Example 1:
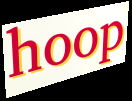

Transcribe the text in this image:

hoop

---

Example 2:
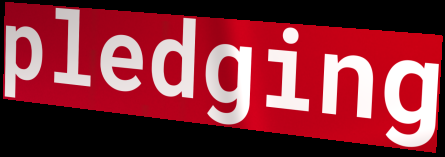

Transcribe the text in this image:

pledging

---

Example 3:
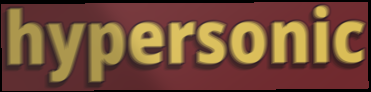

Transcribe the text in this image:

hypersonic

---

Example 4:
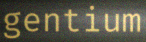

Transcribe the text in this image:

gentium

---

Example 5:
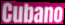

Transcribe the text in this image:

Cubano